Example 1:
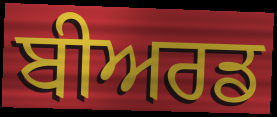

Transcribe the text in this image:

ਬੀਅਰਡ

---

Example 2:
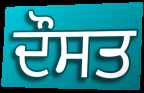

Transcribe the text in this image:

ਦੌਸਤ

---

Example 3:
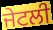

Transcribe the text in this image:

ਜੇਟਲੀ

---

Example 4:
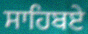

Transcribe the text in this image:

ਸਾਹਿਬਏ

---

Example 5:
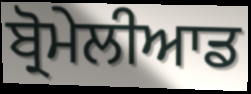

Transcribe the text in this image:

ਬ੍ਰੋਮੇਲੀਆਡ